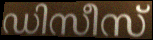
ഡിസീസ്